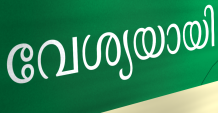
വേശ്യയായി